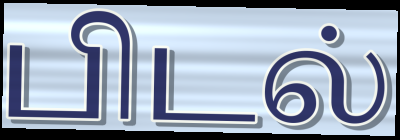
பிடல்